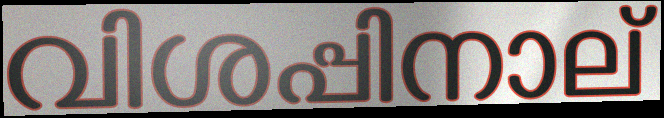
വിശപ്പിനാല്